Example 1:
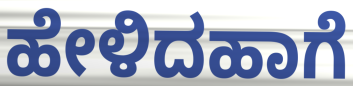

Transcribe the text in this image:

ಹೇಳಿದಹಾಗೆ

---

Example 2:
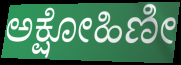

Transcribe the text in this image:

ಅಕ್ಷೋಹಿಣೀ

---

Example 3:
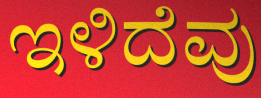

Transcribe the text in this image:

ಇಳಿದೆವು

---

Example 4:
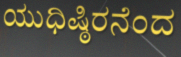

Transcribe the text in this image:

ಯುಧಿಷ್ಠಿರನೆಂದ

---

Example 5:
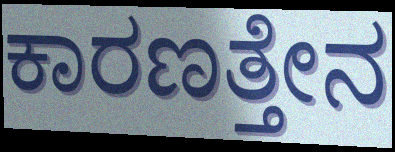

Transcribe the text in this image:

ಕಾರಣತ್ತೇನ